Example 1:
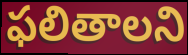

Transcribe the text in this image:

ఫలితాలని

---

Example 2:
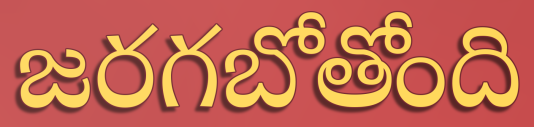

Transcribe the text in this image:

జరగబోతోంది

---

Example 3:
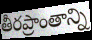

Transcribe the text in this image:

తీరప్రాంతాన్ని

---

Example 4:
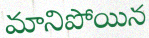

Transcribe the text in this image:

మానిపోయిన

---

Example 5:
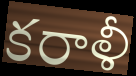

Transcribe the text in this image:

కరాళీ